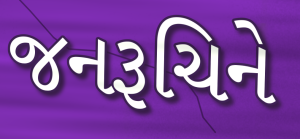
જનરૂચિને